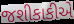
જશીકાકીએ